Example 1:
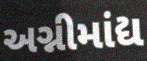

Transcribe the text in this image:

અગ્નીમાંદ્ય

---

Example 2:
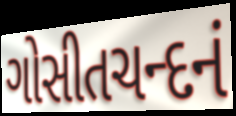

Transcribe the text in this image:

ગોસીતચન્દનં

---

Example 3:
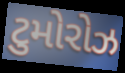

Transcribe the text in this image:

ટુમોરોઝ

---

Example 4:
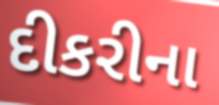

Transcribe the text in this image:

દીકરીના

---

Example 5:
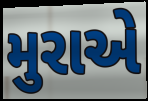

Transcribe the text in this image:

મુરાએ